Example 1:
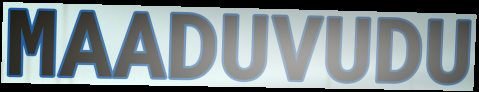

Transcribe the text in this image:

MAADUVUDU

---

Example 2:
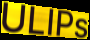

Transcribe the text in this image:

ULIPs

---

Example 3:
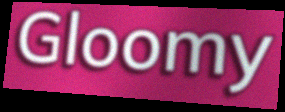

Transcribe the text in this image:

Gloomy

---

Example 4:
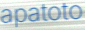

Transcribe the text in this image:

apatoto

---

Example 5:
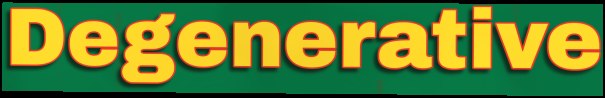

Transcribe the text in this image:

Degenerative